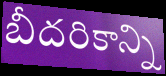
బీదరికాన్ని